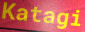
Katagi